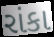
રાંકા